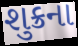
શુક્રના